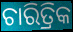
ଚାରିତ୍ରିକ